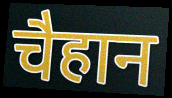
चैहान